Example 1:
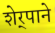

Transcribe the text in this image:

शेर्पाने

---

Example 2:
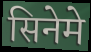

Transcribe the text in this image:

सिनेमे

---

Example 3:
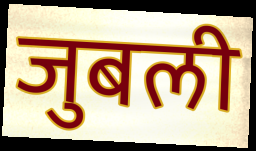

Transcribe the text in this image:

जुबली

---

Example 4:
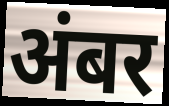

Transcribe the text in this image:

अंबर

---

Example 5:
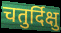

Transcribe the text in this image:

चतुर्दिक्षु